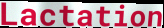
Lactation